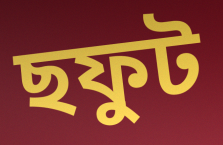
ছফুট